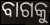
ବାଗକୁ